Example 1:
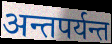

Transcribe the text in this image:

अन्तपर्यन्त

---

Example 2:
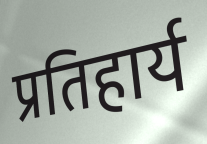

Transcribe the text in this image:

प्रतिहार्य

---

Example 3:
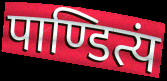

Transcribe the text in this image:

पाण्डित्यं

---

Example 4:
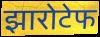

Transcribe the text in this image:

झारोटेफ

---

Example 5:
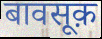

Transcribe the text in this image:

बावसूक़